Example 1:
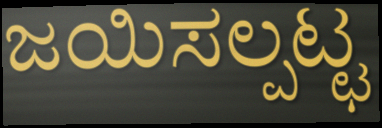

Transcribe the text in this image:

ಜಯಿಸಲ್ಪಟ್ಟ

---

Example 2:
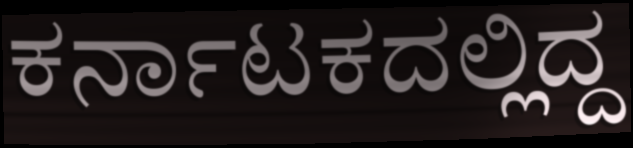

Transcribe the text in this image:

ಕರ್ನಾಟಕದಲ್ಲಿದ್ದ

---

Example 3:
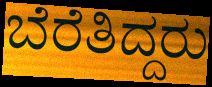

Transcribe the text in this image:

ಬೆರೆತಿದ್ದರು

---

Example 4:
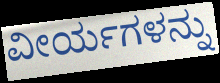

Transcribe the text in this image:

ವೀರ್ಯಗಳನ್ನು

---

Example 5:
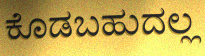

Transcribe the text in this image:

ಕೊಡಬಹುದಲ್ಲ